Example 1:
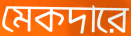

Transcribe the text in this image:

মেকদারে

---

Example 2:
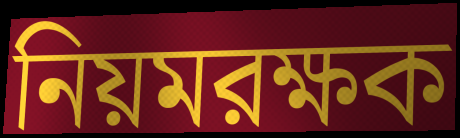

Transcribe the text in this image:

নিয়মরক্ষক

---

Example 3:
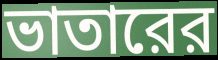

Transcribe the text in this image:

ভাতারের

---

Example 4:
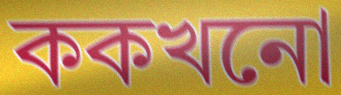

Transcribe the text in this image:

ককখনো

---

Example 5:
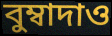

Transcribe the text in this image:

বুম্বাদাও